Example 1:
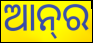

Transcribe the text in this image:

ଆନ୍‌ର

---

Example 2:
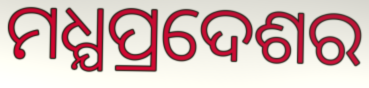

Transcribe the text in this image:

ମଧ୍ଯପ୍ରଦେଶର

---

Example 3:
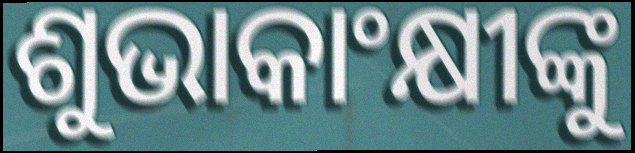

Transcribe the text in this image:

ଶୁଭାକାଂକ୍ଷୀଙ୍କୁ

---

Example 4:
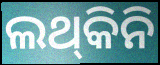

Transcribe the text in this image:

ଲଥ୍‍କିନି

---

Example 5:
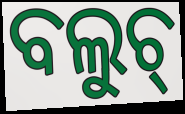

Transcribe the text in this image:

ବଲୁଚ୍